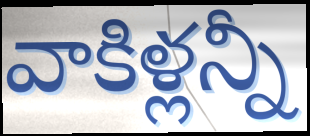
వాకిళ్లన్నీ